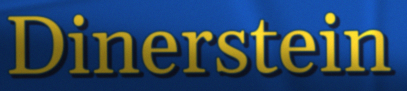
Dinerstein